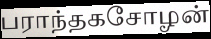
பராந்தகசோழன்